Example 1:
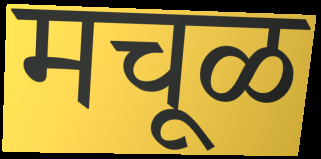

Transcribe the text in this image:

मचूळ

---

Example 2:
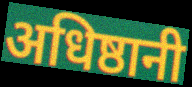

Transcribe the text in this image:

अधिष्ठानी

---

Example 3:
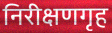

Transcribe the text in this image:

निरीक्षणगृह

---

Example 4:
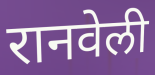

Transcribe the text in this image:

रानवेली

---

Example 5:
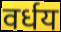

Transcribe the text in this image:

वर्धय